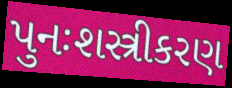
પુનઃશસ્ત્રીકરણ